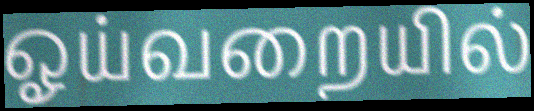
ஓய்வறையில்